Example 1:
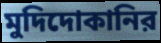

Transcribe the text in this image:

মুদিদোকানির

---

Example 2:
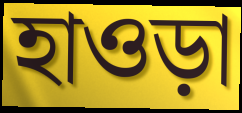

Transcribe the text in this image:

হাওড়া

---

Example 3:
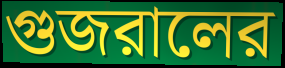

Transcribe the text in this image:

গুজরালের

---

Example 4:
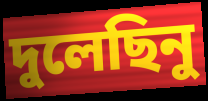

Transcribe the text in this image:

দুলেছিনু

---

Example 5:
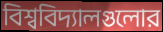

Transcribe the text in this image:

বিশ্ববিদ্যালগুলোর